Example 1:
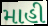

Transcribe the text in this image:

માહી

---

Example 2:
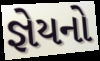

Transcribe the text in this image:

જ્ઞેયનો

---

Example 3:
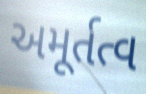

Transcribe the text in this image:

અમૂર્તત્વ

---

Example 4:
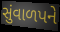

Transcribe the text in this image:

સુંવાળપને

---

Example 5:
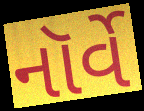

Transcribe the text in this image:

નૉર્વે